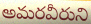
అమరవీరుని